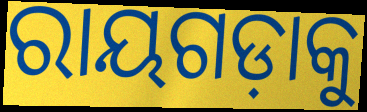
ରାୟଗଡ଼ାକୁ